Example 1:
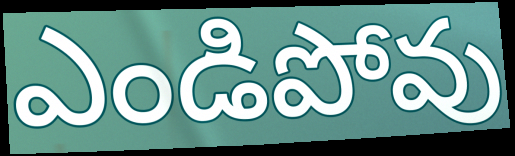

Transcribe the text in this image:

ఎండిపోవు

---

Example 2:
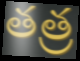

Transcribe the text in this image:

తత్ర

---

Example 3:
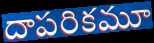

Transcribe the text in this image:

దాపరికమూ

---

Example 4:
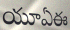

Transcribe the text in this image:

యూఏఈ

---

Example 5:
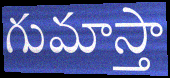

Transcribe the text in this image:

గుమాస్తా